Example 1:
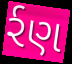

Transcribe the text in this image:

ર્રણ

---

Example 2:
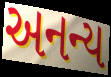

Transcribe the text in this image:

અનન્ય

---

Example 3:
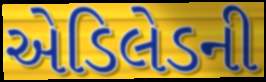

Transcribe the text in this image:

એડિલેડની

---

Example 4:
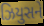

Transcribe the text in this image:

ઝિયુસને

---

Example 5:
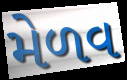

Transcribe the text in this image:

મેળવ